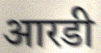
आरडी